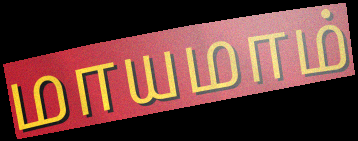
மாயமாம்